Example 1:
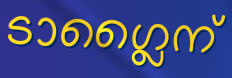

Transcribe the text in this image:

ടാഗ്ലൈന്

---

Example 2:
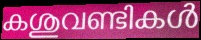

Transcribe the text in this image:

കശുവണ്ടികൾ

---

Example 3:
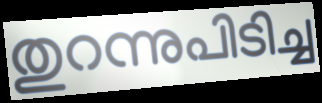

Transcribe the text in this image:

തുറന്നുപിടിച്ച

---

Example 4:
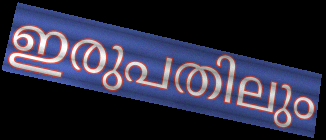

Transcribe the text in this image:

ഇരുപതിലും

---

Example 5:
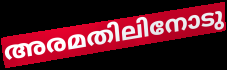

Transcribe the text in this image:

അരമതിലിനോടു